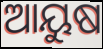
ଆୟୁଷ